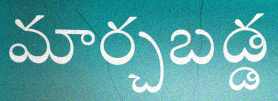
మార్చబడ్డ